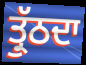
ਤ੍ਰੁੱਠਦਾ